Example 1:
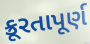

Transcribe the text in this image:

ક્રૂરતાપૂર્ણ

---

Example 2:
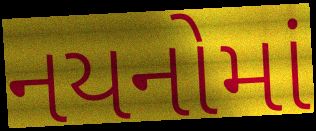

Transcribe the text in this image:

નયનોમાં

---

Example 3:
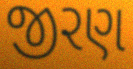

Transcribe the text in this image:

જીરણ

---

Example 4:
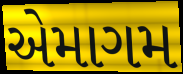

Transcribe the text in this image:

એમાગમ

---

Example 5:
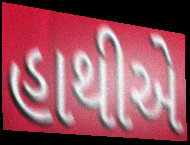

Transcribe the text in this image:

હાથીએ